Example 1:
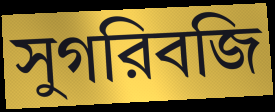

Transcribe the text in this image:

সুগরিবজি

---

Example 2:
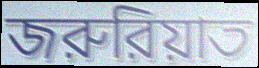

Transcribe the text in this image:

জরুরিয়াত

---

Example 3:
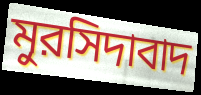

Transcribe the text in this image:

মুরসিদাবাদ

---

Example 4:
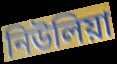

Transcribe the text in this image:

নিউলিয়া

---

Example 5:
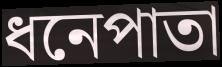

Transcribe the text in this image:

ধনেপাতা